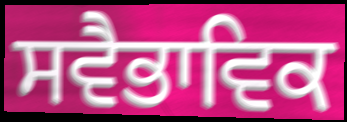
ਸਵੈਭਾਵਿਕ